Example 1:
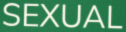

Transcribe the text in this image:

SEXUAL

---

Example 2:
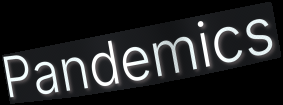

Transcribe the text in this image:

Pandemics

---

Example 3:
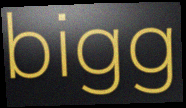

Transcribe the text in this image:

bigg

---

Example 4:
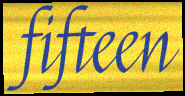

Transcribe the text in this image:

fifteen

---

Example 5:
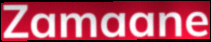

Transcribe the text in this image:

Zamaane